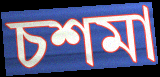
চশমা